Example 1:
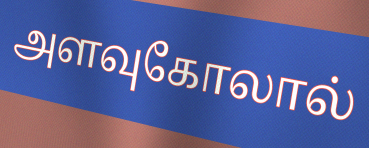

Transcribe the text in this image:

அளவுகோலால்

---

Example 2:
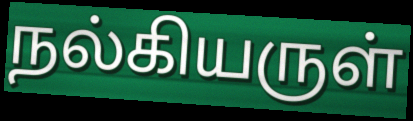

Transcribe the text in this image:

நல்கியருள்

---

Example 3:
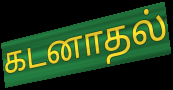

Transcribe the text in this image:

கடனாதல்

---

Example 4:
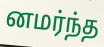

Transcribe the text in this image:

னமர்ந்த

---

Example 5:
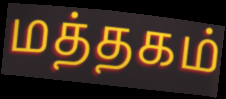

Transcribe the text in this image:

மத்தகம்